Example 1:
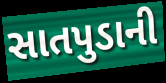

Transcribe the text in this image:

સાતપુડાની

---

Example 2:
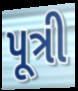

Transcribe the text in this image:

પૂત્રી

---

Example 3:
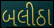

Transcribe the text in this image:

બલીઠા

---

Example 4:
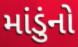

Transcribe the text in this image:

માંડુંનો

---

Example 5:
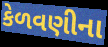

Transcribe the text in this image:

કેળવણીના